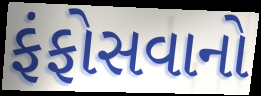
ફંફોસવાનો